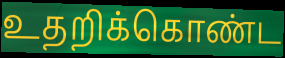
உதறிக்கொண்ட